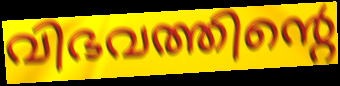
വിഭവത്തിന്റെ